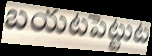
బయటపెట్టుట